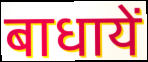
बाधायें